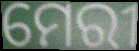
ମେରୀ